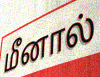
மீனால்